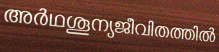
അർഥശൂന്യജീവിതത്തിൽ